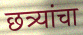
छत्र्यांचा